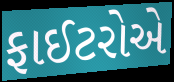
ફાઈટરોએ